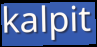
kalpit